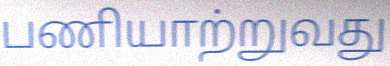
பணியாற்றுவது